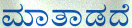
ಮಾತಾಡದೆ